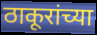
ठाकूरांच्या